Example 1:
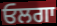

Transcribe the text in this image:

ਓਲਗਾ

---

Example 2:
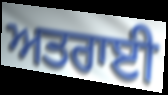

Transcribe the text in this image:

ਅਤਰਾਈ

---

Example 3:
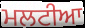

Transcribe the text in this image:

ਮਲਟੀਆ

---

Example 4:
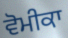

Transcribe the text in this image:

ਵੋਮੀਕਾ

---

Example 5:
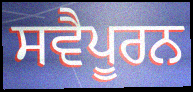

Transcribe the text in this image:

ਸਵੈਪੂਰਨ